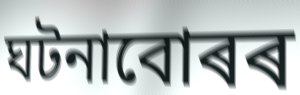
ঘটনাবোৰৰ